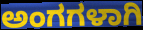
ಅಂಗಗಳಾಗಿ